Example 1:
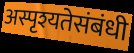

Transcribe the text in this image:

अस्पृश्यतेसंबंधी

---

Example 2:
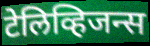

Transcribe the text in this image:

टेलिव्हिजन्स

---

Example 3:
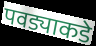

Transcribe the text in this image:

पवड्याकडे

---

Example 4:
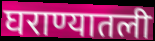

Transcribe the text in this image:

घराण्यातली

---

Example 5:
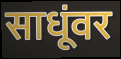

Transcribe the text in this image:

साधूंवर